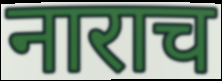
नाराच